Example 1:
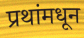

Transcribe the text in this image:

प्रथांमधून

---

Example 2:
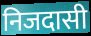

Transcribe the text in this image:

निजदासी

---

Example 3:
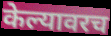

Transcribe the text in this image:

केल्यावरच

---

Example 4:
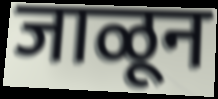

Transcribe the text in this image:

जाळून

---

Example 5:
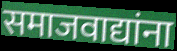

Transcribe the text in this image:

समाजवाद्यांना